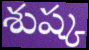
శుష్క